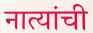
नात्यांची